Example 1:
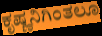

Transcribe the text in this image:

ಕೃಷ್ಣನಿಗಿಂತಲೂ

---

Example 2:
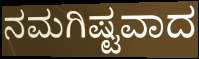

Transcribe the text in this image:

ನಮಗಿಷ್ಟವಾದ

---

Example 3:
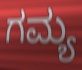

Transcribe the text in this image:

ಗಮ್ಯ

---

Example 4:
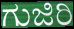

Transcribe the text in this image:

ಗುಜಿರಿ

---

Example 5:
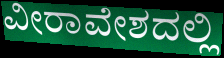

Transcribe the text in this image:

ವೀರಾವೇಶದಲ್ಲಿ